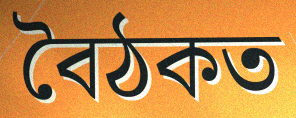
বৈঠকত